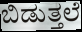
ಬಿಡುತ್ತಲೆ